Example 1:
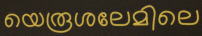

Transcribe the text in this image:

യെരൂശലേമിലെ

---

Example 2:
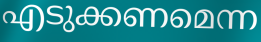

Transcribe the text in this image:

എടുക്കണമെന്ന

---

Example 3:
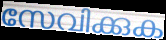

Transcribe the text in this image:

സേവിക്കുക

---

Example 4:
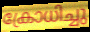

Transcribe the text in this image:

ക്രോധിച്ചു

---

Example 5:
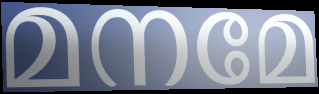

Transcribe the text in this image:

മനമേ